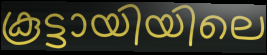
കൂട്ടായിയിലെ